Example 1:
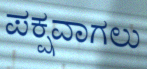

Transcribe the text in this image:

ಪಕ್ಷವಾಗಲು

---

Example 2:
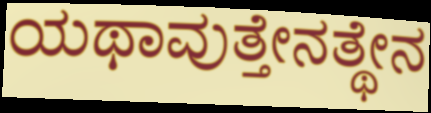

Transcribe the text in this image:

ಯಥಾವುತ್ತೇನತ್ಥೇನ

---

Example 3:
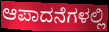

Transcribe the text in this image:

ಆಪಾದನೆಗಳಲ್ಲಿ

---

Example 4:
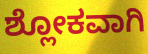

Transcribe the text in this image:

ಶ್ಲೋಕವಾಗಿ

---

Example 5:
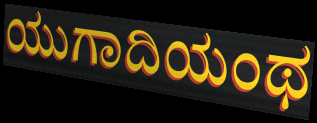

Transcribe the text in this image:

ಯುಗಾದಿಯಂಥ